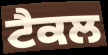
ਟੈਕਲ